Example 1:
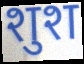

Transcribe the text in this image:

शुश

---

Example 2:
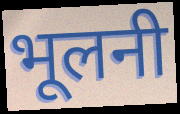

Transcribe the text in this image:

भूलनी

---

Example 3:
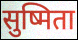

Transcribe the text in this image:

सुष्मिता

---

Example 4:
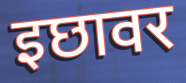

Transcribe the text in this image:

इछावर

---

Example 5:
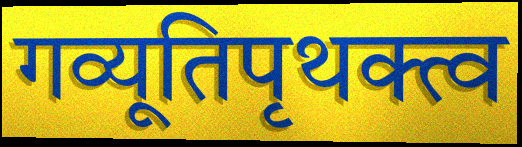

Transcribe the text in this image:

गव्यूतिपृथक्त्व